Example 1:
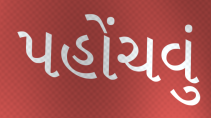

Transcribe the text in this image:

પહોંચવું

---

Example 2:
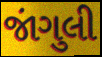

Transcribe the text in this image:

જાંગુલી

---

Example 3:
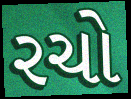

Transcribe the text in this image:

રચો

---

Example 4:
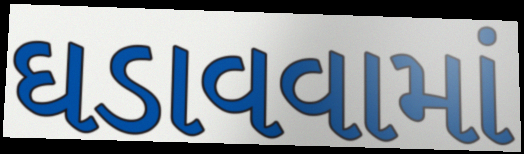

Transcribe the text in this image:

ઘડાવવામાં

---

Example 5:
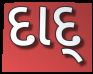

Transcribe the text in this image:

દાદ્